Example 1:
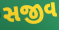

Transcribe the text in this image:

સજીવ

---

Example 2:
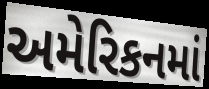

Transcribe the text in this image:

અમેરિકનમાં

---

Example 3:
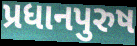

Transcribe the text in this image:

પ્રધાનપુરુષ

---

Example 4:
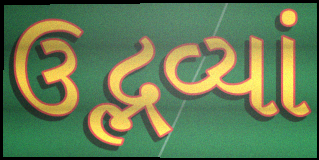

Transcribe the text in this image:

ઉદ્ભવ્યાં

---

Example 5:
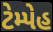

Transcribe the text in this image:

ટેમ્પેહ